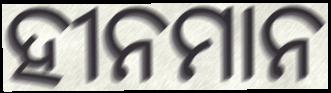
ହୀନମାନ